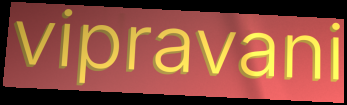
vipravani